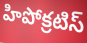
హిపోక్రటిస్